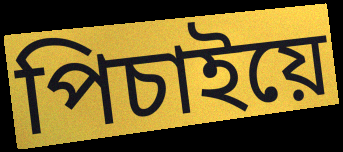
পিচাইয়ে